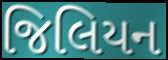
જિલિયન